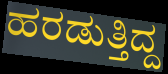
ಹರಡುತ್ತಿದ್ದ